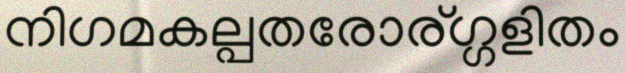
നിഗമകല്പതരോര്ഗ്ഗളിതം